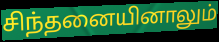
சிந்தனையினாலும்